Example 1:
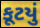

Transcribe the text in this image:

કૂટયું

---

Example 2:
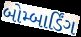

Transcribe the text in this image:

બોમ્બાર્ડિંગ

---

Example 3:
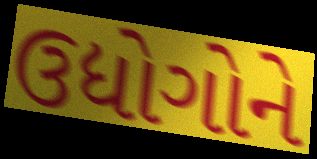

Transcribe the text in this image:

ઉદ્યોગોને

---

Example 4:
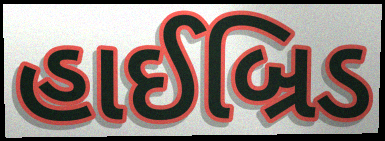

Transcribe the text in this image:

હાઈબ્રિડ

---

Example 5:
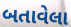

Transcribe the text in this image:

બતાવેલા